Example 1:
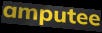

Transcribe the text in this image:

amputee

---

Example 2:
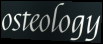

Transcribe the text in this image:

osteology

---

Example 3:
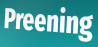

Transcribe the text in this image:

Preening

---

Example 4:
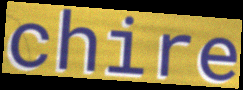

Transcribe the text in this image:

chire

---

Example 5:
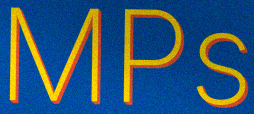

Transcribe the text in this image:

MPs